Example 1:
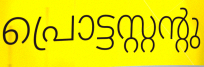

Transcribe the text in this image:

പ്രൊട്ടസ്റ്റന്റു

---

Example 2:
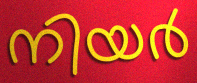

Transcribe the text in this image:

നിയർ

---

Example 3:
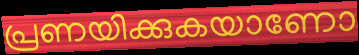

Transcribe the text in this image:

പ്രണയിക്കുകയാണോ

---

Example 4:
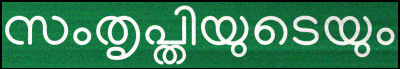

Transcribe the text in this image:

സംതൃപ്തിയുടെയും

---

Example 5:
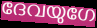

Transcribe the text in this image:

ദേവയുഗേ